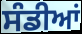
ਸੰਡੀਆਂ